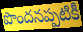
పొందనప్పటికీ